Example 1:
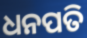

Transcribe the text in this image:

ଧନପତି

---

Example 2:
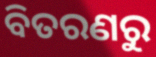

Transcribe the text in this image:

ବିତରଣରୁ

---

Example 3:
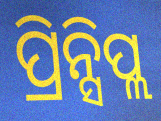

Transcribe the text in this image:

ପ୍ରିନ୍ସିପ୍ଲ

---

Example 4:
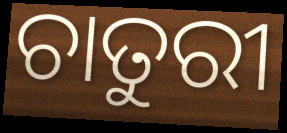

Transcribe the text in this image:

ଚାତୁରୀ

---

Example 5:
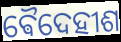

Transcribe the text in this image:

ଵୈଦେହୀଶ